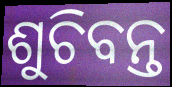
ଶୁଚିବନ୍ତ